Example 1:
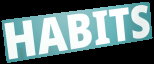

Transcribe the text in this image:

HABITS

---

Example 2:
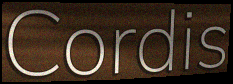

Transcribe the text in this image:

Cordis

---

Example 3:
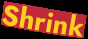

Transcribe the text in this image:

Shrink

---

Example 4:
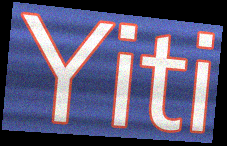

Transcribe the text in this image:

Yiti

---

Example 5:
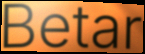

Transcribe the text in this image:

Betar